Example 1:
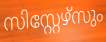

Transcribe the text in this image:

സിസ്റ്റേഴ്സും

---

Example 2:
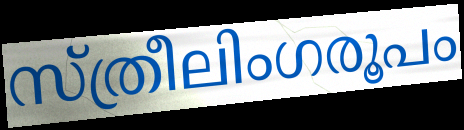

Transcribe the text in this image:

സ്ത്രീലിംഗരൂപം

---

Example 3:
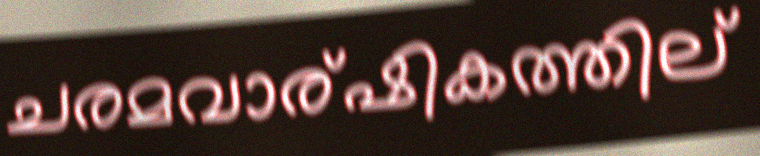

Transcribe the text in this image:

ചരമവാര്ഷികത്തില്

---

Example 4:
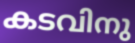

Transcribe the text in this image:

കടവിനു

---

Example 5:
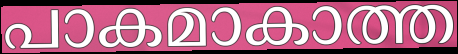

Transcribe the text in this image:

പാകമാകാത്ത